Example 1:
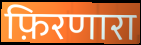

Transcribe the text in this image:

फ़िरणारा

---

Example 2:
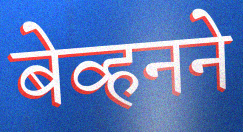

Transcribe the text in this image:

बेव्हनने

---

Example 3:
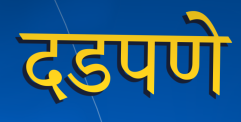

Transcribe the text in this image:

दडपणे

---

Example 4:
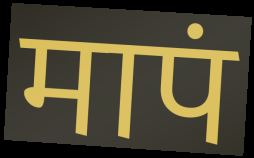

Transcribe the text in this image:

मापं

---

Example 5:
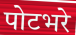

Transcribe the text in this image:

पोटभरे